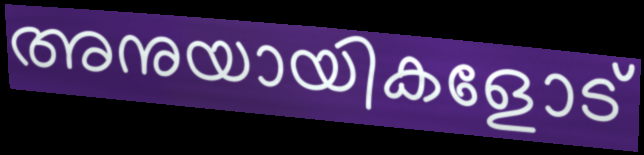
അനുയായികളോട്